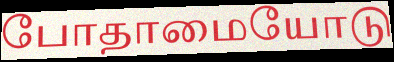
போதாமையோடு